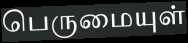
பெருமையுள்